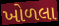
ખોળલા